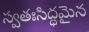
స్వతఃసిద్ధమైన